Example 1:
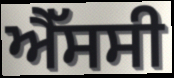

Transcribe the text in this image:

ਐੱਸਸੀ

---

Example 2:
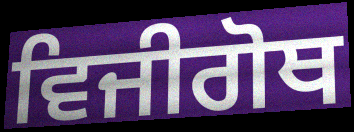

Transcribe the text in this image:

ਵਿਜੀਗੋਥ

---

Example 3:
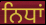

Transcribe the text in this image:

ਨਿਧਾਂ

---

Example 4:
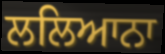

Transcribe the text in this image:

ਲਲਿਆਨਾ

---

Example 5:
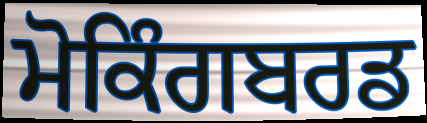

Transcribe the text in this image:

ਮੋਕਿੰਗਬਰਡ